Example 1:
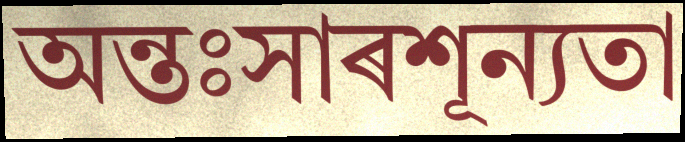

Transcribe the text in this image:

অন্তঃসাৰশূন্যতা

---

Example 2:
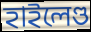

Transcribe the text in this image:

হাইলেণ্ড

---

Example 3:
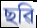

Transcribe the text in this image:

ছৱি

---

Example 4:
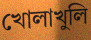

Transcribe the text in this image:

খোলাখুলি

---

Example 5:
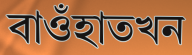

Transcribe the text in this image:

বাওঁহাতখন